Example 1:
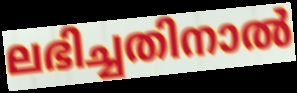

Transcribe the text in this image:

ലഭിച്ചതിനാൽ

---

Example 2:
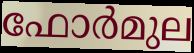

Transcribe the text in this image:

ഫോർമുല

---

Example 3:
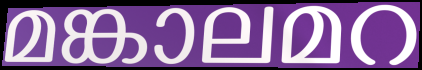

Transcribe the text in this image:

മങ്കാലമറ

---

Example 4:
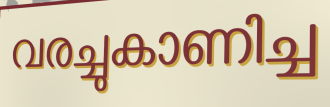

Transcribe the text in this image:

വരച്ചുകാണിച്ച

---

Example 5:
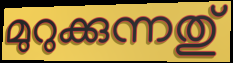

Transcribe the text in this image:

മുറുക്കുന്നതു്